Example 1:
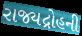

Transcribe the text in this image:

રાજ્યદ્રોહની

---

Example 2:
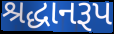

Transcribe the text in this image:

શ્રદ્ધાનરૂપ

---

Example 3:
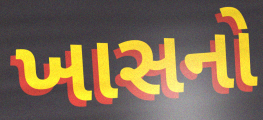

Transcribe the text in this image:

ખાસનો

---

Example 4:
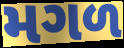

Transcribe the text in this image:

મગળ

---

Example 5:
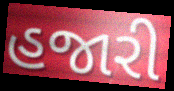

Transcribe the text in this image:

હજારી